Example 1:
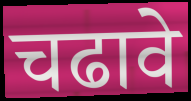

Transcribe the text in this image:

चढावे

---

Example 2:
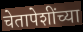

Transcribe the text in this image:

चेतापेशींच्या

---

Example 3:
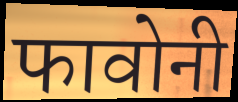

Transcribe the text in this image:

फावोनी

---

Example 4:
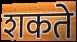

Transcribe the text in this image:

शकते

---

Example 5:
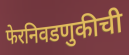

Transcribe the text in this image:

फेरनिवडणुकीची